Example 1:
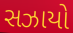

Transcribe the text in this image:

સઝાયો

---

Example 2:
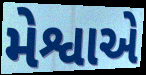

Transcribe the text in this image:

મેશ્વાએ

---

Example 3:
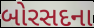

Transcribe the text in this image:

બોરસદના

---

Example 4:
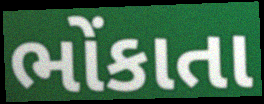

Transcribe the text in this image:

ભોંકાતા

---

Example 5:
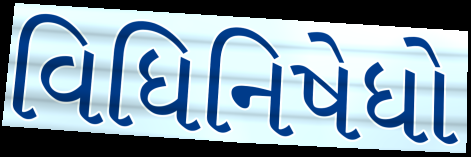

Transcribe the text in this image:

વિધિનિષેધો